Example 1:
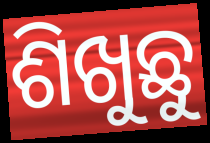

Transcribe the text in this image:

ଶିଖୁଛୁ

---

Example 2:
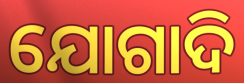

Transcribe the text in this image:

ଯୋଗାଦି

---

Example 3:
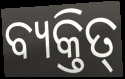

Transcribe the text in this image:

ବ୍ୟକ୍ତିତ୍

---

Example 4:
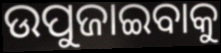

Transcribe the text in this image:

ଉପୁଜାଇବାକୁ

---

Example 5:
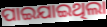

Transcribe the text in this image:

ପାଇଯାଇଥିଲା